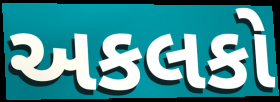
અકલકો